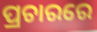
ପ୍ରଚାରରେ